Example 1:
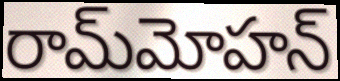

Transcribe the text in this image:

రామ్‌మోహన్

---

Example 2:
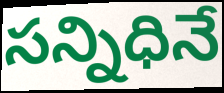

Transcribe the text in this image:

సన్నిధినే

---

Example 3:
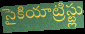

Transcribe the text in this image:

సైకియాట్రిస్ట్లు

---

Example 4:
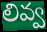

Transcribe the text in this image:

లివ్వ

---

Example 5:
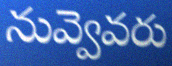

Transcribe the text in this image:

నువ్వెవరు